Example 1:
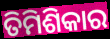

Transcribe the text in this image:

ତିମିଶିକାର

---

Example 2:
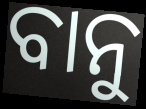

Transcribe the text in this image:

ବାନୁ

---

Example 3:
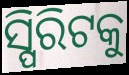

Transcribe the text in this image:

ସ୍ପିରିଟକୁ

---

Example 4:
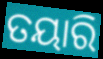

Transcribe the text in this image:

ତୟାରି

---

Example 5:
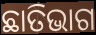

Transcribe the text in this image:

ଛାତିଭାଗ